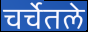
चर्चेतले